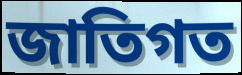
জাতিগত